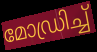
മോഡ്രിച്ച്